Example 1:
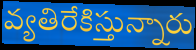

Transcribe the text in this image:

వ్యతిరేకిస్తున్నారు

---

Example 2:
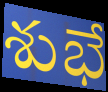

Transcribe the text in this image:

శుభే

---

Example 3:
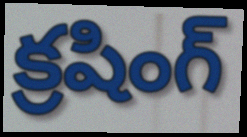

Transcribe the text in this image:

క్రషింగ్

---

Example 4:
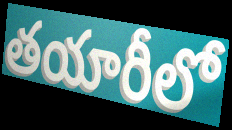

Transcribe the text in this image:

తయారీలో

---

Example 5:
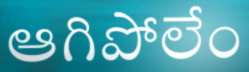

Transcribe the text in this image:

ఆగిపోలేం